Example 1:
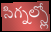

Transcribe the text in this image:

సిగ్నల్స్లో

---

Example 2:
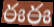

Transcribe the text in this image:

ఈఈ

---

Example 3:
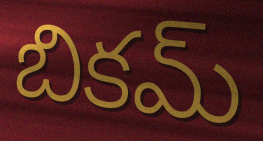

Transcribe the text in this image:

బికమ్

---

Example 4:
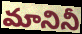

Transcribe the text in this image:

మానినీ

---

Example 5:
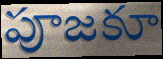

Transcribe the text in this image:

పూజకూ